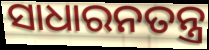
ସାଧାରନତନ୍ତ୍ର